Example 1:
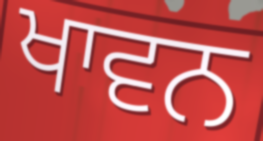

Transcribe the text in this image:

ਖਾਵਨ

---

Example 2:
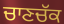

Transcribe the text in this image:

ਚਾਣਚੱਕ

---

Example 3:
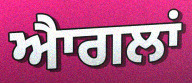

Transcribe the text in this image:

ਐਾਗਲਾਂ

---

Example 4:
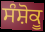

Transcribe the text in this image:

ਸੰਸ਼ੋਕੂ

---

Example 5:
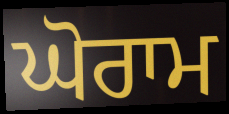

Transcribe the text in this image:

ਘੋਰਾਮ